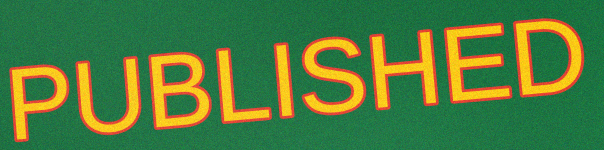
PUBLISHED